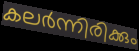
കലർന്നിരിക്കും